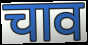
चाव